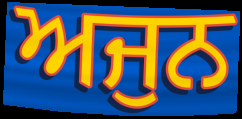
ਅਜੁਨ